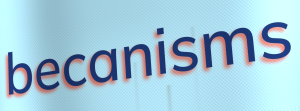
becanisms